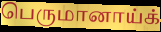
பெருமானாய்க்